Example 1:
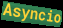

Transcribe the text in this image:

Asyncio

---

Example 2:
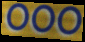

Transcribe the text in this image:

OOO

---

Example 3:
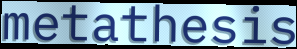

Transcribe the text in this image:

metathesis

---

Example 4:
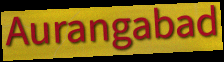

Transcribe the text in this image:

Aurangabad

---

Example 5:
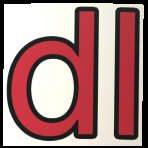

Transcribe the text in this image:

dl